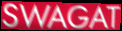
SWAGAT